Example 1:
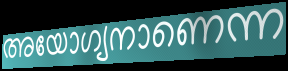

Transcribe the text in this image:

അയോഗ്യനാണെന്ന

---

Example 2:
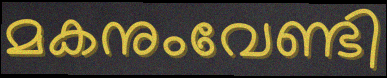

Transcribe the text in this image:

മകനുംവേണ്ടി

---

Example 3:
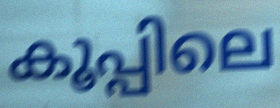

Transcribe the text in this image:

കൂപ്പിലെ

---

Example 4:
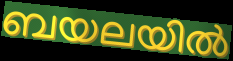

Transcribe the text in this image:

ബയലയിൽ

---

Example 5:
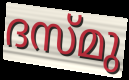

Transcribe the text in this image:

ദസ്മു